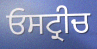
ਓਸਟ੍ਰੀਚ